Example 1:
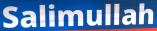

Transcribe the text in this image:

Salimullah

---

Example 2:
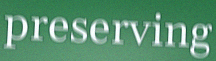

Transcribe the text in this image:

preserving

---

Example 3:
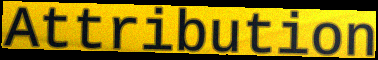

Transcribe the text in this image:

Attribution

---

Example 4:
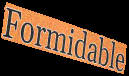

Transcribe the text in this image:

Formidable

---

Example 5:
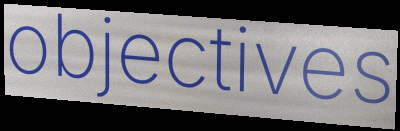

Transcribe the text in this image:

objectives